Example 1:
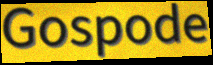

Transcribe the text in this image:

Gospode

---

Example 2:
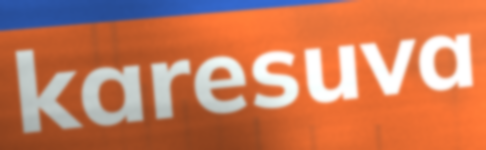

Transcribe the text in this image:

karesuva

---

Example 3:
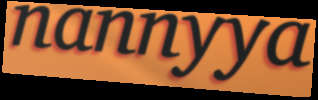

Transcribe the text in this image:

nannyya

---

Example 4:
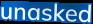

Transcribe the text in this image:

unasked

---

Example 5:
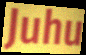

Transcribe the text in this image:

Juhu